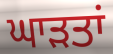
ਘਾਡ਼ਤਾਂ